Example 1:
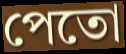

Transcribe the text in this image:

পেতো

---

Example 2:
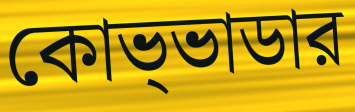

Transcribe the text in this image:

কোভ্ভাডার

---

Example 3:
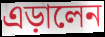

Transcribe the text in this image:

এড়ালেন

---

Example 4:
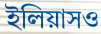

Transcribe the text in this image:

ইলিয়াসও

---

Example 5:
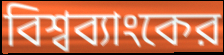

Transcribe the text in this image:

বিশ্বব্যাংকের